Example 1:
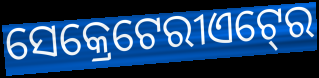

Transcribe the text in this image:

ସେକ୍ରେଟେରୀଏଟ୍‍ରେ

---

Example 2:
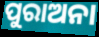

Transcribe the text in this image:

ପୁରାଅନା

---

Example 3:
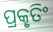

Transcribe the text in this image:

ପ୍ରକୃତିଂ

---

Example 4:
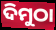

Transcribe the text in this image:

ଦିମୁଠା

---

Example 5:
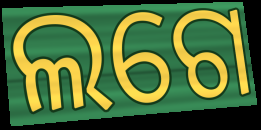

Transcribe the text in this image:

ଲଗେ